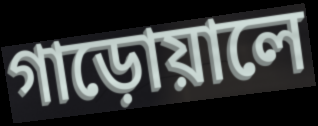
গাড়োয়ালে